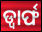
ଡ୍ୱାର୍ଫ